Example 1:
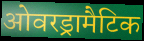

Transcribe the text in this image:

ओवरड्रामैटिक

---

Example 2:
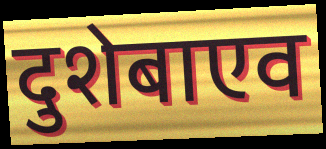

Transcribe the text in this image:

दुशेबाएव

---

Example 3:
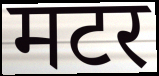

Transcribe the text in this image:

मटर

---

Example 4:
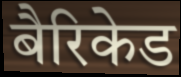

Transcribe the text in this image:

बैरिकेड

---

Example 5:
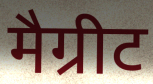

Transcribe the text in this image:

मैग्रीट